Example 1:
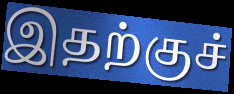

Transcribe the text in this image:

இதற்குச்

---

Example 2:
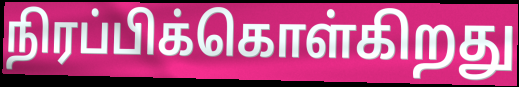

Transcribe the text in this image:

நிரப்பிக்கொள்கிறது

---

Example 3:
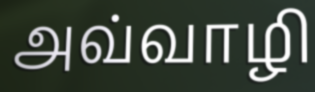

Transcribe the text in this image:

அவ்வாழி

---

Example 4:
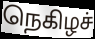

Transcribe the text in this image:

நெகிழச்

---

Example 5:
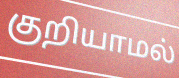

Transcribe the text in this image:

குறியாமல்